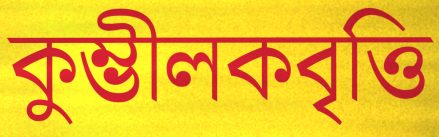
কুম্ভীলকবৃত্তি